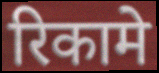
रिकामे